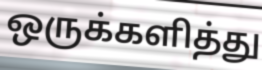
ஒருக்களித்து